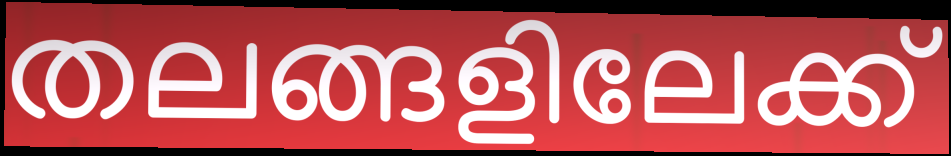
തലങ്ങളിലേക്ക്